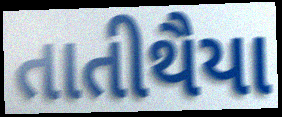
તાતીથૈયા